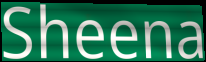
Sheena